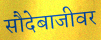
सौदेबाजीवर